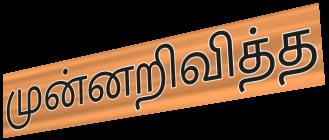
முன்னறிவித்த